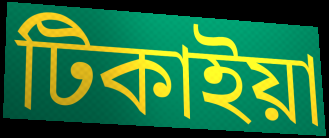
টিকাইয়া